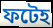
ফটেহ